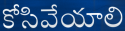
కోసివేయాలి